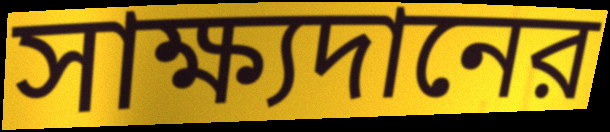
সাক্ষ্যদানের